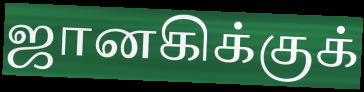
ஜானகிக்குக்